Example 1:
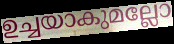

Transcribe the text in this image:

ഉച്ചയാകുമല്ലോ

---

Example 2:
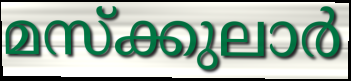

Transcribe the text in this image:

മസ്ക്കുലാർ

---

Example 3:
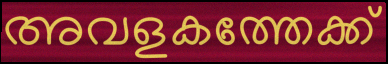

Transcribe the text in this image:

അവളകത്തേക്ക്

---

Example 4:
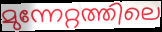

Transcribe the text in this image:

മുന്നേറ്റത്തിലെ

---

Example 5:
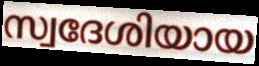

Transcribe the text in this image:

സ്വദേശിയായ